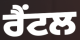
ਰੈਂਟਲ